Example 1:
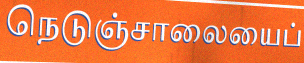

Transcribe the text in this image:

நெடுஞ்சாலையைப்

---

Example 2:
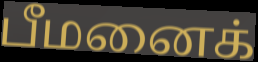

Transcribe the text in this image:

பீமனைக்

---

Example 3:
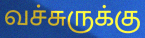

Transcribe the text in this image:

வச்சுருக்கு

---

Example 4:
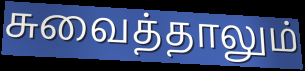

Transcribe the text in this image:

சுவைத்தாலும்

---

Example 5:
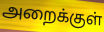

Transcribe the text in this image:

அறைக்குள்